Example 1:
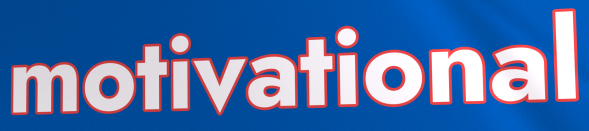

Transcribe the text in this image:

motivational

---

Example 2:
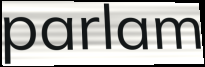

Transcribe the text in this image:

parlam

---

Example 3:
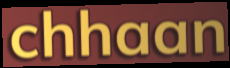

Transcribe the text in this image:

chhaan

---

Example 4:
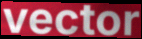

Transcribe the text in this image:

vector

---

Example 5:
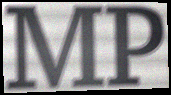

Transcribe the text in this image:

MP